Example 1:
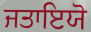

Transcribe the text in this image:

ਜਤਾਇਯੋ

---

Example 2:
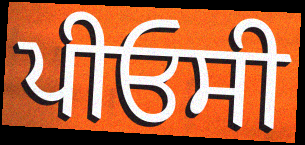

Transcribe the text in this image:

ਪੀਓਸੀ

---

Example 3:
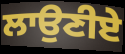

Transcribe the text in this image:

ਲਾਉਣੀਏ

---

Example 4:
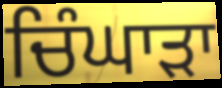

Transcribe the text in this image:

ਚਿੰਘਾੜਾ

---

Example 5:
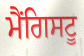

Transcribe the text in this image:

ਮੈਂਗਿਸਟੂ